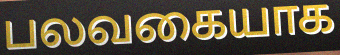
பலவகையாக